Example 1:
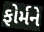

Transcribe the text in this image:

ફોર્મને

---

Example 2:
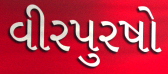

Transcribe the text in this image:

વીરપુરષો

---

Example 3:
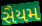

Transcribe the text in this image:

સૈયમ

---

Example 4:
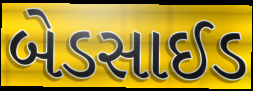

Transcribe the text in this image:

બેડસાઈડ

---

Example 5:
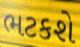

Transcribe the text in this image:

ભટકશે